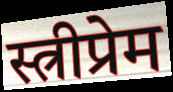
स्त्रीप्रेम